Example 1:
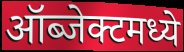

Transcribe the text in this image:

ऑब्जेक्टमध्ये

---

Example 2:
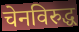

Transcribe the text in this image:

चेनविरुद्ध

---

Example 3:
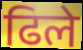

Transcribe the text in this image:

ढिले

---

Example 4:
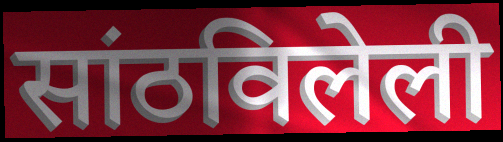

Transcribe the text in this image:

सांठविलेली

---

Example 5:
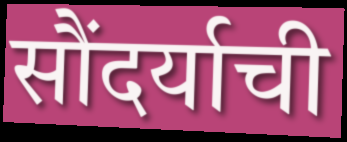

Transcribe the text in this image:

सौंदर्याची